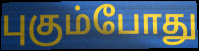
புகும்போது